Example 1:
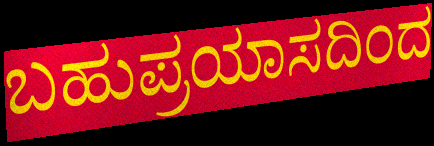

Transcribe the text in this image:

ಬಹುಪ್ರಯಾಸದಿಂದ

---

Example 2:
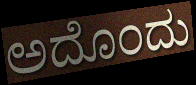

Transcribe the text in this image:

ಅದೊಂದು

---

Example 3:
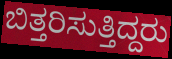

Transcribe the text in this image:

ಬಿತ್ತರಿಸುತ್ತಿದ್ದರು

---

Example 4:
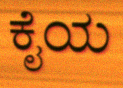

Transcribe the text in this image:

ಕೈಯ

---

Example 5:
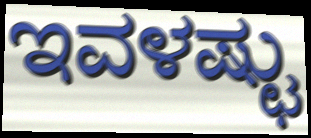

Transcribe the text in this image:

ಇವಳಷ್ಟು